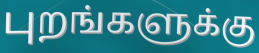
புறங்களுக்கு